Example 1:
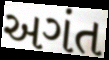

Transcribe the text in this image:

અગંત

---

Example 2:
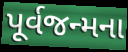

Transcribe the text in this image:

પૂર્વજન્મના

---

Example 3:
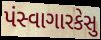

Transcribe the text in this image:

પંસ્વાગારકેસુ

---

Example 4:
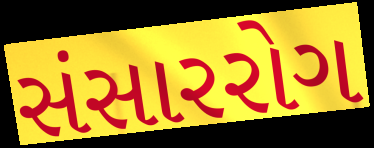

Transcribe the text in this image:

સંસારરોગ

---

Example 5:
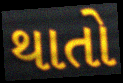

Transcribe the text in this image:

થાતો